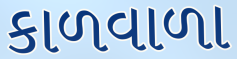
કાળવાળા